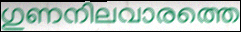
ഗുണനിലവാരത്തെ